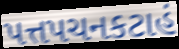
પત્તપચનકટાહં